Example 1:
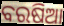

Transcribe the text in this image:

ବରଷିଆ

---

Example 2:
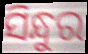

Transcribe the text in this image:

ସିନ୍ଧୁର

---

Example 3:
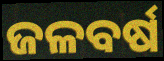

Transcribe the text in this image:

ଜଳବର୍ଷ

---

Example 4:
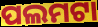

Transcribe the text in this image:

ପଲମଟା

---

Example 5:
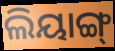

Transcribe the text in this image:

ଲିୟାଙ୍ଗ୍